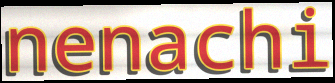
nenachi